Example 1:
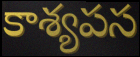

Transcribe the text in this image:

కాశ్యపస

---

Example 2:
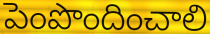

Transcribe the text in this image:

పెంపొందించాలి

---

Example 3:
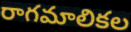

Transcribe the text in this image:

రాగమాలికల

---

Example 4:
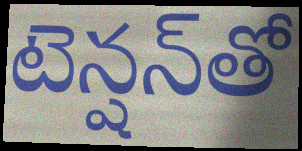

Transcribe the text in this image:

టెన్షన్‌తో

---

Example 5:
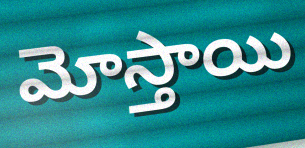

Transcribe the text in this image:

మోస్తాయి